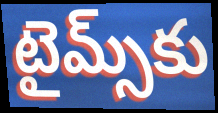
టైమ్స్‌కు